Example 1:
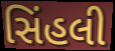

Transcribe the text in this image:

સિંહલી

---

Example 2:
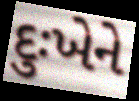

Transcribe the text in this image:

દુઃખેને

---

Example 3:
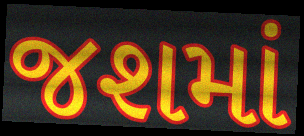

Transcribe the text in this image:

જશમાં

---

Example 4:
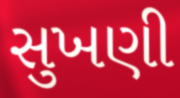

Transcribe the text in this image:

સુખણી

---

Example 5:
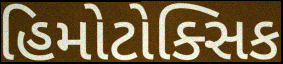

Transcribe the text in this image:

હિમોટોક્સિક